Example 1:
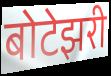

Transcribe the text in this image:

बोटेझरी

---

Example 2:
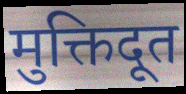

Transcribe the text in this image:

मुक्तिदूत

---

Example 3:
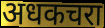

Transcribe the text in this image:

अधकचरा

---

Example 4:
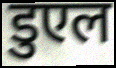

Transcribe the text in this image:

डुएल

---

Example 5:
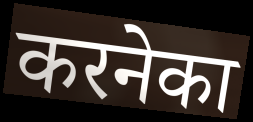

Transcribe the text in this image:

करनेका